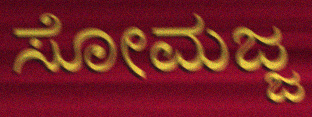
ಸೋಮಜ್ಜ